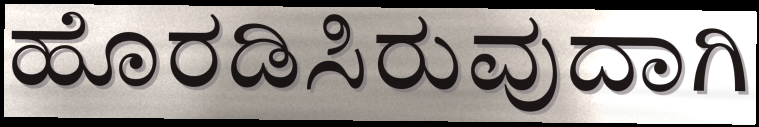
ಹೊರಡಿಸಿರುವುದಾಗಿ